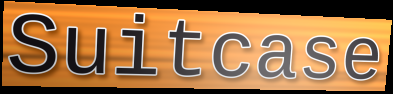
Suitcase